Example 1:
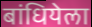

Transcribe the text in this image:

बांधियेला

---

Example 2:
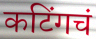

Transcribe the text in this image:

कटिंगचं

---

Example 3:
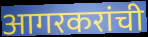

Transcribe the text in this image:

आगरकरांची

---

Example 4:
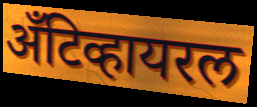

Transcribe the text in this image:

अँटिव्हायरल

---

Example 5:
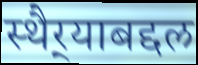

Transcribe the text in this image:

स्थैर्याबद्दल